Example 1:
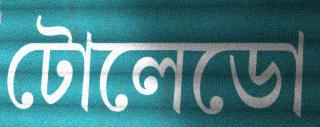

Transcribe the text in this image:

টোলেডো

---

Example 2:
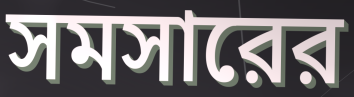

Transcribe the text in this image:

সমসারের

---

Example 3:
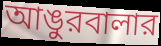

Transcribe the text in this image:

আঙুরবালার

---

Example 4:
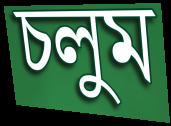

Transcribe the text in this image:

চলুম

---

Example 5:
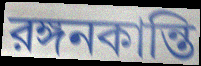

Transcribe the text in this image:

রঙ্গনকান্তি